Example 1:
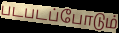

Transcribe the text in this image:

படபடப்போடும்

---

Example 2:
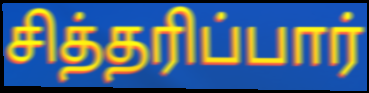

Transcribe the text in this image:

சித்தரிப்பார்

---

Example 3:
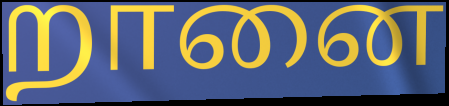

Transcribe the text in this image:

றானை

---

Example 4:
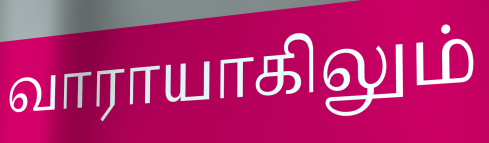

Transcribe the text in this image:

வாராயாகிலும்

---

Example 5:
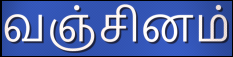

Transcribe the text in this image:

வஞ்சினம்